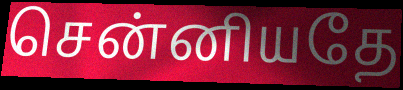
சென்னியதே